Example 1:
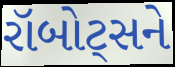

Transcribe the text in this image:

રૉબોટ્સને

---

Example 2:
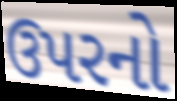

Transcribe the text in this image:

ઉપરનો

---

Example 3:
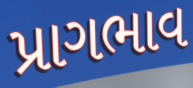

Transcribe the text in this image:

પ્રાગભાવ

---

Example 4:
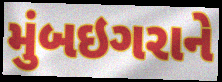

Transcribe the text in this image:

મુંબઇગરાને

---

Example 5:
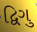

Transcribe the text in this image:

દ્વિગુ